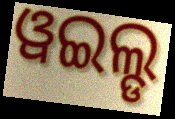
ୱଇଲ୍ଡ